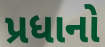
પ્રધાનો